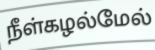
நீள்கழல்மேல்